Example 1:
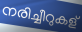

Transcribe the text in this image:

നരിച്ചീറുകള്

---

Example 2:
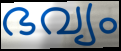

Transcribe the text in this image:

ഭവ്യം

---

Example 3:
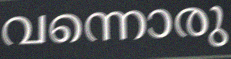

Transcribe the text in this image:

വന്നൊരു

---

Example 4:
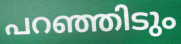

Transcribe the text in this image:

പറഞ്ഞിടും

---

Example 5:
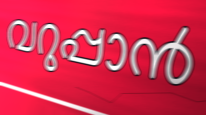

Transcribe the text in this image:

വറുപ്പാൻ